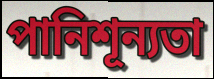
পানিশূন্যতা